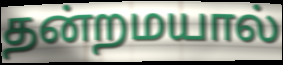
தன்றமயால்